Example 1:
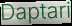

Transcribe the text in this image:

Daptari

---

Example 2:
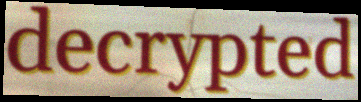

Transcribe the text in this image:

decrypted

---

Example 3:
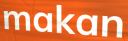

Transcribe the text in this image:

makan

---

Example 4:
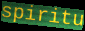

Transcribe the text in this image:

spiritu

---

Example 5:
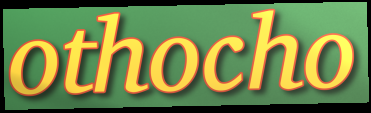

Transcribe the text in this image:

othocho